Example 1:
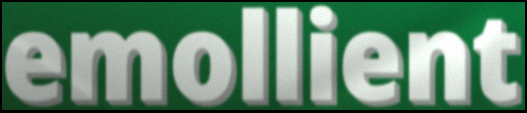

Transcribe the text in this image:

emollient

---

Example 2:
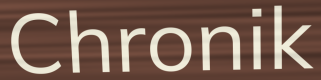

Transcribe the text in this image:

Chronik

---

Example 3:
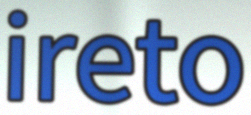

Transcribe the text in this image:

ireto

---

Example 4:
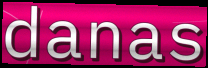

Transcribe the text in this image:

danas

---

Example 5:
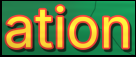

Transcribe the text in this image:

ation